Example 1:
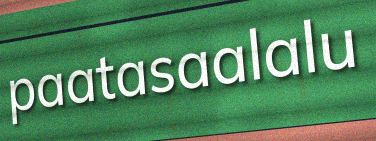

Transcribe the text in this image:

paatasaalalu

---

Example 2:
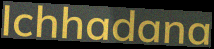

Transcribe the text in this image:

Ichhadana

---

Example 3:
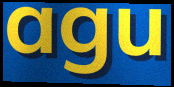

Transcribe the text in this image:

agu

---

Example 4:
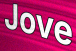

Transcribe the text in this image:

Jove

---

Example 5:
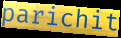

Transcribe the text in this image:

parichit